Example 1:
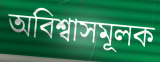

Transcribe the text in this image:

অবিশ্বাসমূলক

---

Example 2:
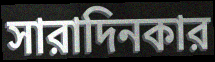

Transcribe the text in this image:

সারাদিনকার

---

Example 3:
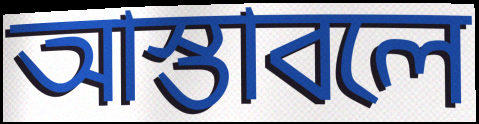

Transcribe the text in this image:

আস্তাবলে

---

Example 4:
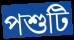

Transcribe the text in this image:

পশুটি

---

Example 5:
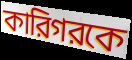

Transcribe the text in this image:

কারিগরকে